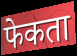
फेकता